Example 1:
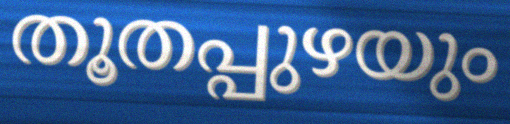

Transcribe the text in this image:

തൂതപ്പുഴയും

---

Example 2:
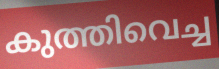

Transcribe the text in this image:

കുത്തിവെച്ച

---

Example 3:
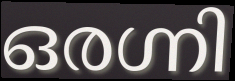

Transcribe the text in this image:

ഒരഗ്നി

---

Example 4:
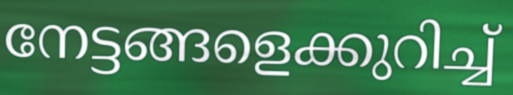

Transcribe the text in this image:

നേട്ടങ്ങളെക്കുറിച്ച്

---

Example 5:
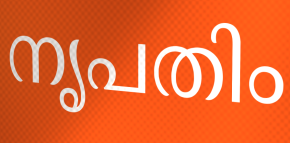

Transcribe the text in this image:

നൃപതിം